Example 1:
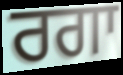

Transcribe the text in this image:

ਰਗਾ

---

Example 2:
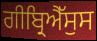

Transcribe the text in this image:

ਗੀਬ੍ਰਿਐੱਸੁਸ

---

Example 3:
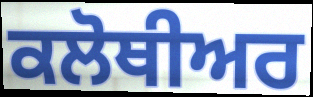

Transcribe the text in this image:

ਕਲੋਥੀਅਰ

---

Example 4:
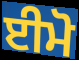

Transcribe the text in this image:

ਈਮੋ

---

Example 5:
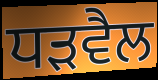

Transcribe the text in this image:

ਧੜਵੈਲ